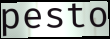
pesto